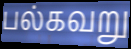
பல்கவறு